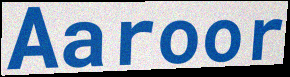
Aaroor